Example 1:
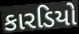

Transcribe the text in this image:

કારડિયો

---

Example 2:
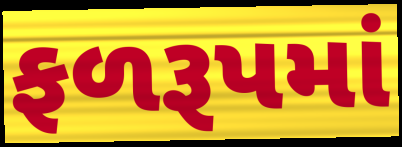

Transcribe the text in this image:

ફળરૂપમાં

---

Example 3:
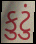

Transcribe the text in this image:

કુટું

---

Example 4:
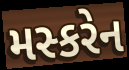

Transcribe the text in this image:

મસ્કરેન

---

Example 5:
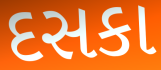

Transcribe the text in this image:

દસકા